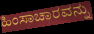
ಹಿಂಸಾಚಾರವನ್ನು